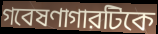
গবেষণাগারটিকে